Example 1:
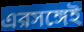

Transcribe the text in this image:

এরসঙ্গেই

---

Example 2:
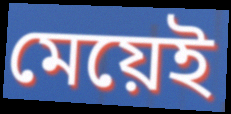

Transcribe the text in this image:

মেয়েই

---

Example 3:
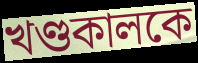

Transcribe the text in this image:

খণ্ডকালকে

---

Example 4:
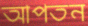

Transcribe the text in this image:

আপতন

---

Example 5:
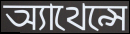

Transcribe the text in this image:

অ্যাথেন্সে